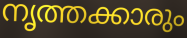
നൃത്തക്കാരും